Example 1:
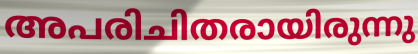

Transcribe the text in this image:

അപരിചിതരായിരുന്നു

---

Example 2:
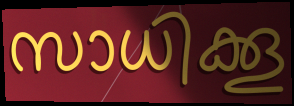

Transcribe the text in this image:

സാധിക്കൂ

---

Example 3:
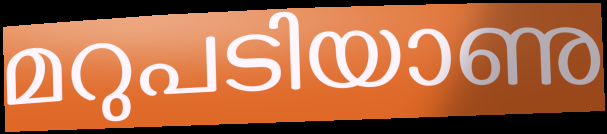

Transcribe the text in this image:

മറുപടിയാണു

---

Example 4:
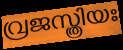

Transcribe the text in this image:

വ്രജസ്ത്രിയഃ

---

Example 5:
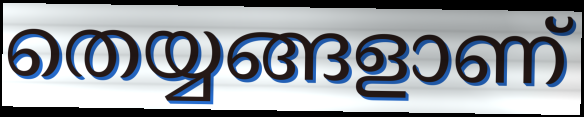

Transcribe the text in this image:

തെയ്യങ്ങളാണ്